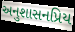
અનુશાસનપ્રિય